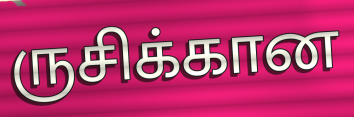
ருசிக்கான